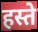
हस्ते